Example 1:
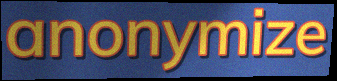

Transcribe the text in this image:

anonymize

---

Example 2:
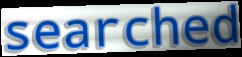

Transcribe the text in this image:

searched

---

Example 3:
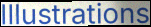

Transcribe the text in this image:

Illustrations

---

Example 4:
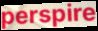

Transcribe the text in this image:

perspire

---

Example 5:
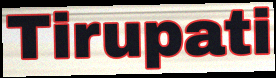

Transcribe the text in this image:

Tirupati